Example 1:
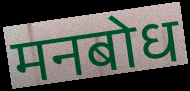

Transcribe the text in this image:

मनबोध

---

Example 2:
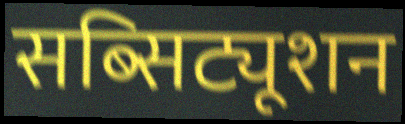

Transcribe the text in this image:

सब्सिट्यूशन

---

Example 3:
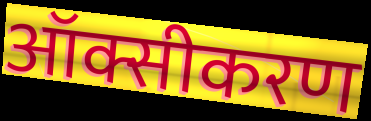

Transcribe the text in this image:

ऑक्सीकरण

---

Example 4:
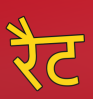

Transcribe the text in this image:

रैट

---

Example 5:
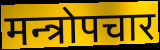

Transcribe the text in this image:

मन्त्रोपचार